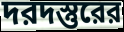
দরদস্তুরের